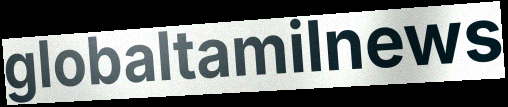
globaltamilnews